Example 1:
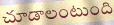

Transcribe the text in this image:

చూడాలంటుంది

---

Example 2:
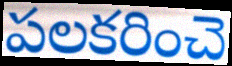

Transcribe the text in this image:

పలకరించె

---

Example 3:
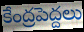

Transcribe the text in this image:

కేంద్రపెద్దలు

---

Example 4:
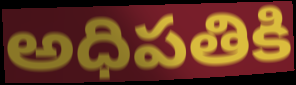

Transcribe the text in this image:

అధిపతికి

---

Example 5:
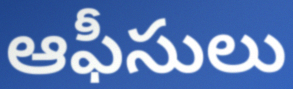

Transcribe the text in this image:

ఆఫీసులు